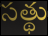
సత్థు